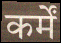
कर्में